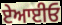
ਏਆਈਓ